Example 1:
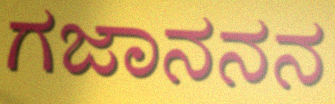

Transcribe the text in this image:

ಗಜಾನನನ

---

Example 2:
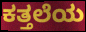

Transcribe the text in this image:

ಕತ್ತಲೆಯ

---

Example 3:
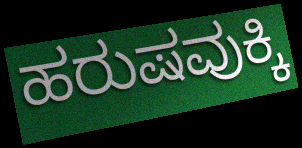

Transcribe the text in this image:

ಹರುಷವುಕ್ಕಿ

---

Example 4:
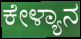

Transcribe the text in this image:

ಕೇಳ್ಯಾನ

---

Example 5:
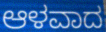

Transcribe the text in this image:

ಆಳವಾದ